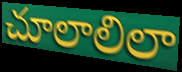
చూలాలిలా